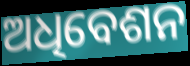
ଅଧିବେଶନ